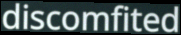
discomfited